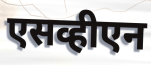
एसव्हीएन